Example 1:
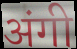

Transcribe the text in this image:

अंगी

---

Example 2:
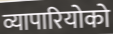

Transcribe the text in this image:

व्यापारियोको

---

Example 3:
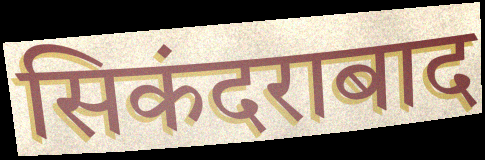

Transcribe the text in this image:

सिकंदराबाद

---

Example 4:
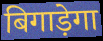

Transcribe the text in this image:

बिगाड़ेगा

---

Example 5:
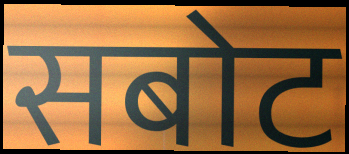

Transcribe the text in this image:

सबोट